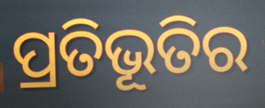
ପ୍ରତିଭୂତିର